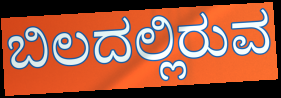
ಬಿಲದಲ್ಲಿರುವ